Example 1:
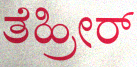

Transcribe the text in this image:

ತೆಹ್ರೀರ್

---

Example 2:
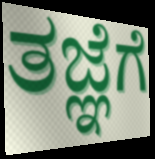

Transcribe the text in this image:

ತಜ್ಞೆಗೆ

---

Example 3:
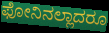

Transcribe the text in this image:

ಫೋನಿನಲ್ಲಾದರೂ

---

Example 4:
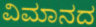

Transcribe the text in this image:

ವಿಮಾನದ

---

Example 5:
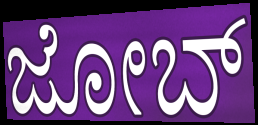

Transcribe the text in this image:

ಜೋಬ್